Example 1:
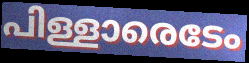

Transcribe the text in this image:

പിള്ളാരെടേം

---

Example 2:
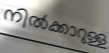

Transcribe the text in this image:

നിൽക്കാറുള്ള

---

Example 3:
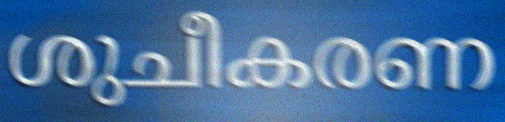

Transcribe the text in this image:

ശുചീകരണ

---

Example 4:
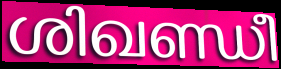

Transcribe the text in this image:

ശിഖണ്ഡീ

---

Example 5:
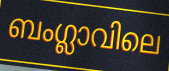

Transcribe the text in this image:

ബംഗ്ലാവിലെ